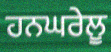
ਹਨਘਰੇਲੂ